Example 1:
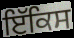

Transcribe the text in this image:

ਇੱਕਿਸ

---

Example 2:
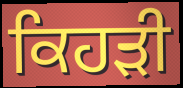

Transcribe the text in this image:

ਕਿਹੜੀ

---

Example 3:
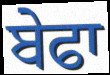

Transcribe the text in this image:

ਬੇਫਾ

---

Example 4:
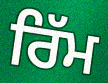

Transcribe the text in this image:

ਰਿੱਮ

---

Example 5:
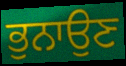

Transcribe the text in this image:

ਭੁਨਾਉਣ